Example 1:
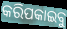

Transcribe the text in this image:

କରିପକାଇବୁ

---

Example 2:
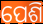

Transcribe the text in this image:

ପେଶି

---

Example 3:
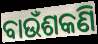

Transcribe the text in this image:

ବାଉଁଶକଣି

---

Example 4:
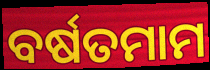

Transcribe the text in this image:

ବର୍ଷତମାମ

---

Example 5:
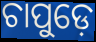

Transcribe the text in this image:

ଚାପୁଡ଼େ